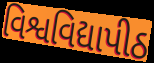
વિશ્વવિદ્યાપીઠ